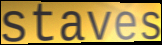
staves